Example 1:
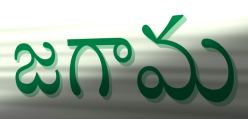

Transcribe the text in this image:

జగామ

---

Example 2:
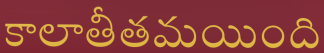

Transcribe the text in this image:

కాలాతీతమయింది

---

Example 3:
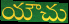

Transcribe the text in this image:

యౌచు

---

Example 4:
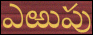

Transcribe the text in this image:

ఎఱుపు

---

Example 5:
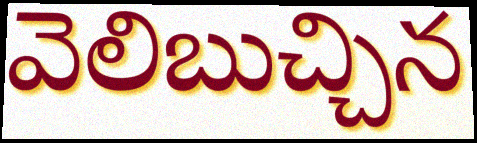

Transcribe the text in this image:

వెలిబుచ్చిన